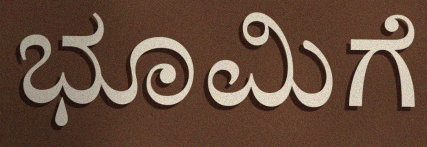
ಭೂಮಿಗೆ